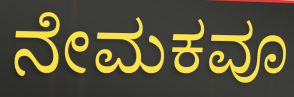
ನೇಮಕವೂ